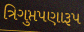
ત્રિગુપ્તપણારૂપ